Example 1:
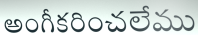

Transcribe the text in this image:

అంగీకరించలేము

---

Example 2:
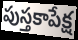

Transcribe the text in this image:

పుస్తకాపేక్ష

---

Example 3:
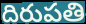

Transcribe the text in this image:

దిరుపతి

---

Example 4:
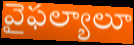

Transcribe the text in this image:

వైఫల్యాలూ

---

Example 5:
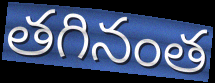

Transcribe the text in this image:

తగినంత